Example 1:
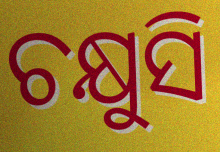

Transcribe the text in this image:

ଚକ୍ଷୁସି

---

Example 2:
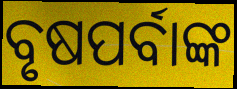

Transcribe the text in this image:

ବୃଷପର୍ବାଙ୍କ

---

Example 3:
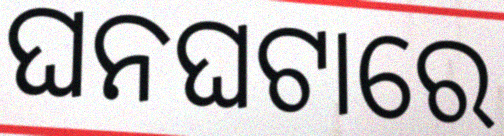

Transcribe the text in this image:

ଘନଘଟାରେ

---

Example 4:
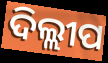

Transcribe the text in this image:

ଦିଲ୍ଲୀପ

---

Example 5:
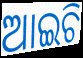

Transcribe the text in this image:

ଆଇଚି